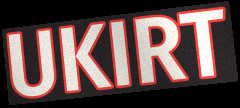
UKIRT